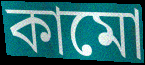
কামো